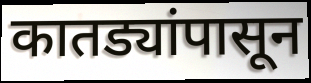
कातड्यांपासून